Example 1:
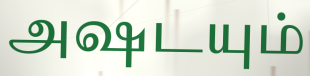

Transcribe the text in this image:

அஷடயும்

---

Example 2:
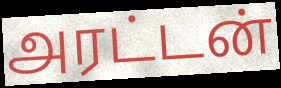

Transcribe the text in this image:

அரட்டன்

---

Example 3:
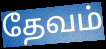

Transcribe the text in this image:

தேவம்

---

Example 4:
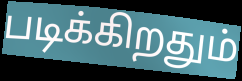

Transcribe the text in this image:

படிக்கிறதும்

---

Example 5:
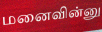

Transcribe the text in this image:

மனைவின்னு